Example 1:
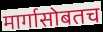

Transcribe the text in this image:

मार्गासोबतच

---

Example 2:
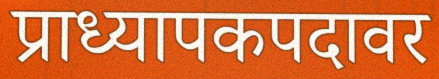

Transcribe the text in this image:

प्राध्यापकपदावर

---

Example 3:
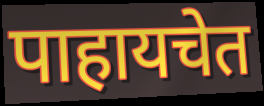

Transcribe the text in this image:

पाहायचेत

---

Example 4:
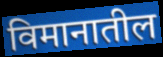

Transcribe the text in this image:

विमानातील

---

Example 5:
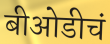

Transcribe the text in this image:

बीओडीचं